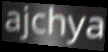
ajchya